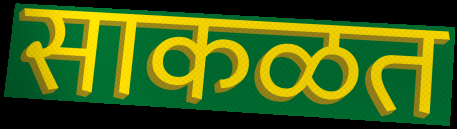
साकळत